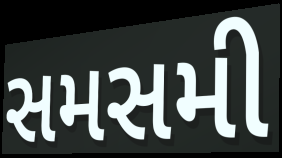
સમસમી